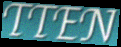
TTEN